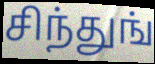
சிந்துங்